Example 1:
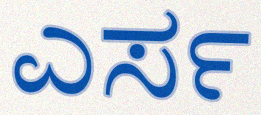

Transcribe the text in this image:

ಎರ್ಸ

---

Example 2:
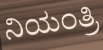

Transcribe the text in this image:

ನಿಯಂತ್ರಿ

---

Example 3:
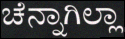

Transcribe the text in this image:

ಚೆನ್ನಾಗಿಲ್ಲಾ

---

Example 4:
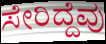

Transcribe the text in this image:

ಸೇರಿದ್ದೆವು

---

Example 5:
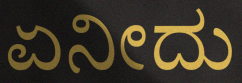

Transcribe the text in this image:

ಏನೀದು